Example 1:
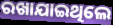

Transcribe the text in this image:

ରଖାଯାଇଥିଲେ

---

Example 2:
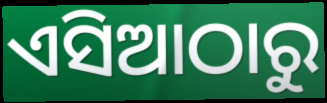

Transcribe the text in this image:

ଏସିଆଠାରୁ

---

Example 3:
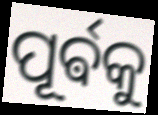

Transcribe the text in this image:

ପୂର୍ଵକୁ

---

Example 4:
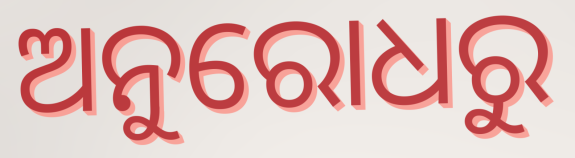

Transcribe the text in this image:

ଅନୁରୋଧରୁ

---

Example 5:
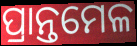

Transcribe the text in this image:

ପ୍ରାନ୍ତମେଳ